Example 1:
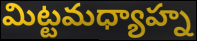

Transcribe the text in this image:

మిట్టమధ్యాహ్న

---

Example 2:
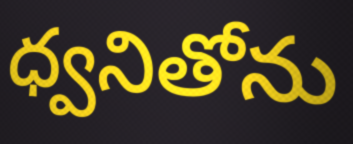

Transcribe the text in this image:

ధ్వనితోను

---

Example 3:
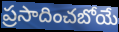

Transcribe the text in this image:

ప్రసాదించబోయే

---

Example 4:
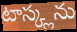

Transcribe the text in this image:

టాస్క్లను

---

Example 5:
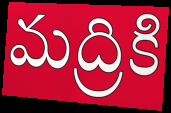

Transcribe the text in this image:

మద్రికి